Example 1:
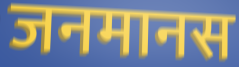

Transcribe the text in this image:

जनमानस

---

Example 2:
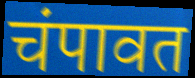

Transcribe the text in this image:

चंपावत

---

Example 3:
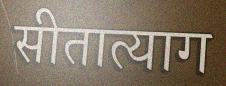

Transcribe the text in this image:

सीतात्याग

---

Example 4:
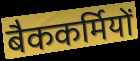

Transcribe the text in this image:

बैककर्मियों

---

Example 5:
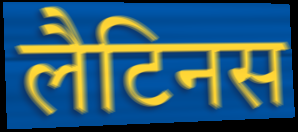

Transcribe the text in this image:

लैटिनस